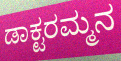
ಡಾಕ್ಟರಮ್ಮನ